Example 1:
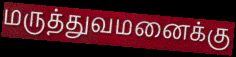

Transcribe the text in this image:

மருத்துவமனைக்கு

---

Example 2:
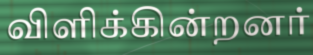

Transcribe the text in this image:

விளிக்கின்றனர்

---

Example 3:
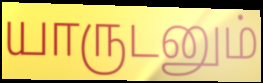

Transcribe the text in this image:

யாருடனும்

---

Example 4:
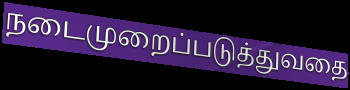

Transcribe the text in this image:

நடைமுறைப்படுத்துவதை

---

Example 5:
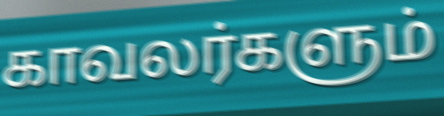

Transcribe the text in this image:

காவலர்களும்